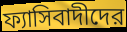
ফ্যাসিবাদীদের